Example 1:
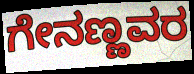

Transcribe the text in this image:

ಗೇನಣ್ಣವರ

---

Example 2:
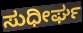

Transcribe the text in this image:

ಸುಧೀರ್ಘ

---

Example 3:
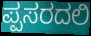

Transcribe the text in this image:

ಪ್ಪಸರದಲಿ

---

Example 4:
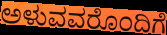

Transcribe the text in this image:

ಅಳುವವರೊಂದಿಗೆ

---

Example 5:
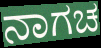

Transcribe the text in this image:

ನಾಗಚ